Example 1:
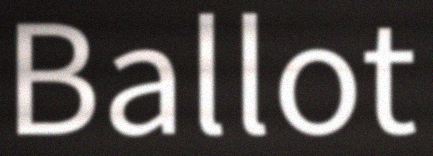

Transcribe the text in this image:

Ballot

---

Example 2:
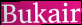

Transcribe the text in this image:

Bukair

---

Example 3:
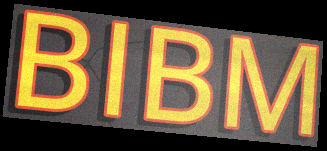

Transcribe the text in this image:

BIBM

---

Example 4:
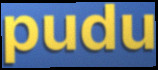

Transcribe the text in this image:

pudu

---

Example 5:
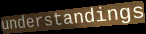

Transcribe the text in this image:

understandings